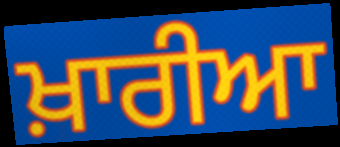
ਖ਼ਾਰੀਆ